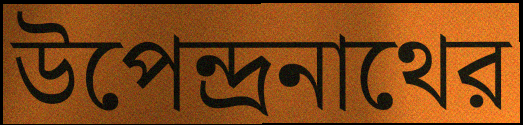
উপেন্দ্রনাথের